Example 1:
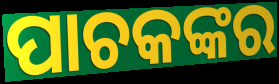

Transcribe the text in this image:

ପାଚକଙ୍କର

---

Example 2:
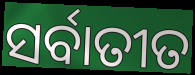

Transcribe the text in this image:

ସର୍ବାତୀତ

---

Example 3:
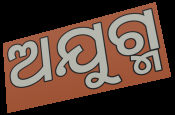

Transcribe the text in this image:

ଅଯୁଗ୍ମ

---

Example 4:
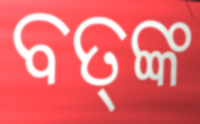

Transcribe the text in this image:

ବତ୍‍ଙ୍କ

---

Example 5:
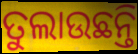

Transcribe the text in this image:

ତୁଲାଉଛନ୍ତି